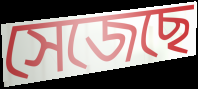
সেজেছে